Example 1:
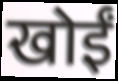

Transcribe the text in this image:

खोईं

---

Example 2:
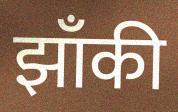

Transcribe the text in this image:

झाँकी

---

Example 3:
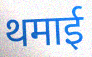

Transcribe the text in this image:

थमाई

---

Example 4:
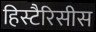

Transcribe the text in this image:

हिस्टैरिसीस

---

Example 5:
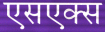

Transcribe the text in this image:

एसएक्स